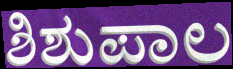
ಶಿಶುಪಾಲ